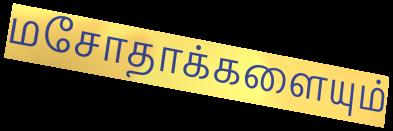
மசோதாக்களையும்